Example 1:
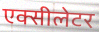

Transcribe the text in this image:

एक्सीलेटर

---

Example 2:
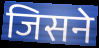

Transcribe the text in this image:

जिसने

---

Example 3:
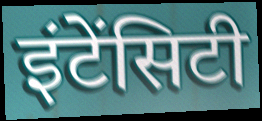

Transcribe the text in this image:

इंटेंसिटी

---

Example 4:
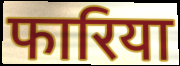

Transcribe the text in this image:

फारिया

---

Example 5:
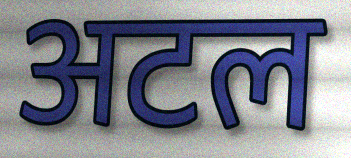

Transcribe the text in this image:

अटल